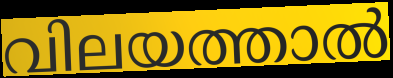
വിലയത്താൽ